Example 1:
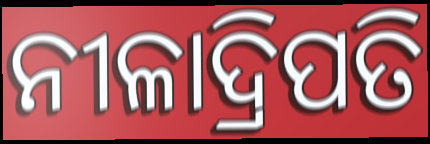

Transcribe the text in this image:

ନୀଳାଦ୍ରିପତି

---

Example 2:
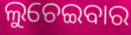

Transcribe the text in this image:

ଲୁଚେଇବାର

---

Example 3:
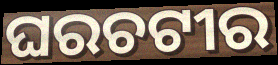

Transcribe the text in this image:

ଘରଚଟୀର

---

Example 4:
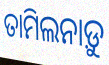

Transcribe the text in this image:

ତାମିଲନାଡ଼ୁ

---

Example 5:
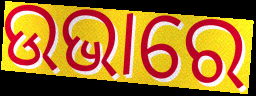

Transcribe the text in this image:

ଉଭାରେ